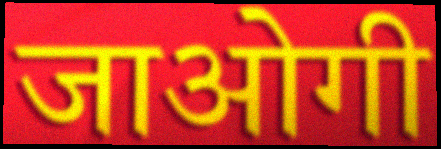
जाओगी